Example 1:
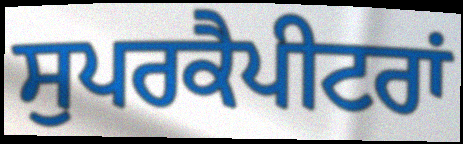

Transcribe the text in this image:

ਸੁਪਰਕੈਪੀਟਰਾਂ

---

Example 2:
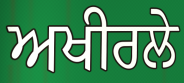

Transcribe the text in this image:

ਅਖੀਰਲੇ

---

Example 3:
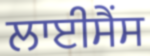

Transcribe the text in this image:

ਲਾਈਸੈਂਸ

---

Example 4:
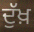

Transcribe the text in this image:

ਦੁੱਖ਼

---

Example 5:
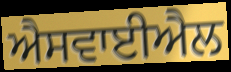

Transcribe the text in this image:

ਐਸਵਾਈਐਲ